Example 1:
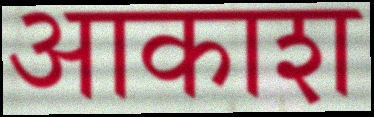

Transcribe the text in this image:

आकाश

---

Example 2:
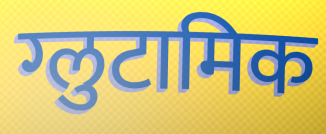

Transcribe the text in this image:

ग्लुटामिक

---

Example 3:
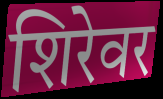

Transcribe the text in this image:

शिरेवर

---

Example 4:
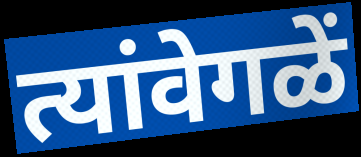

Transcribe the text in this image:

त्यांवेगळें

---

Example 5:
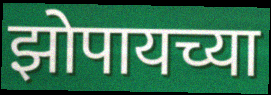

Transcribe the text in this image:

झोपायच्या